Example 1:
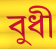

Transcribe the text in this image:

বুধী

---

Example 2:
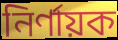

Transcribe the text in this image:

নির্ণায়ক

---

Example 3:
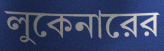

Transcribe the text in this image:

লুকেনারের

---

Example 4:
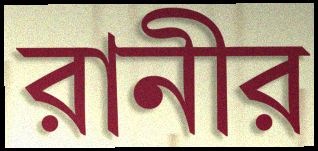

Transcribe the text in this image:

রানীর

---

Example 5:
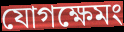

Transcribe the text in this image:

যোগক্ষেমং